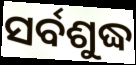
ସର୍ବଶୁଦ୍ଧ